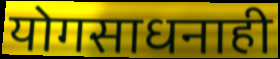
योगसाधनाही